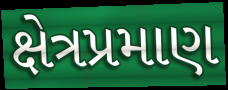
ક્ષેત્રપ્રમાણ